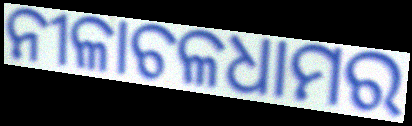
ନୀଳାଚଳଧାମର